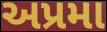
અપ્રમા